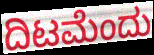
ದಿಟಮೆಂದು